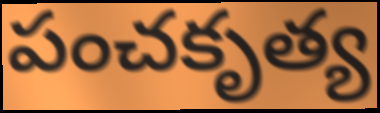
పంచకృత్య